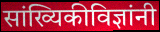
सांख्यिकीविज्ञांनी